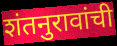
शंतनुरावांची